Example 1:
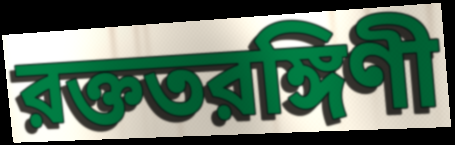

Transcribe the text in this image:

রক্ততরঙ্গিণী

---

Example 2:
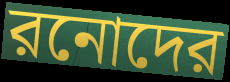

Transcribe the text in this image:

রনোদের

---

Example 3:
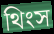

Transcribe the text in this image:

থিংস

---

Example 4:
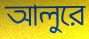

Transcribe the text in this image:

আলুরে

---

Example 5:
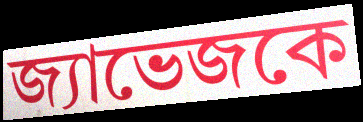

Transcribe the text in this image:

জ্যাভেজকে